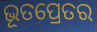
ଭୂତପ୍ରେତର